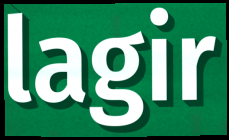
lagir